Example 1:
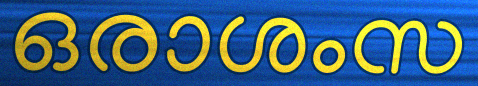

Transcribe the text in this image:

ഒരാശംസ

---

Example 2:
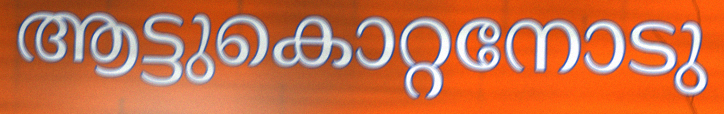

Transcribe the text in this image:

ആട്ടുകൊറ്റനോടു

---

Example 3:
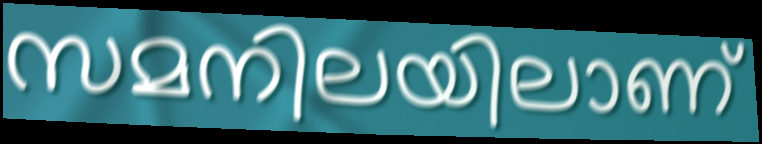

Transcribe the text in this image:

സമനിലയിലാണ്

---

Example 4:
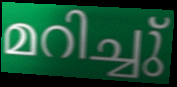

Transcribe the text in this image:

മറിച്ചു്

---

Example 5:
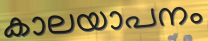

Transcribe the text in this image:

കാലയാപനം